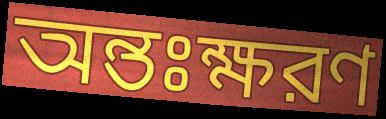
অন্তঃক্ষরণ